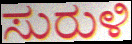
ಸುರುಳಿ